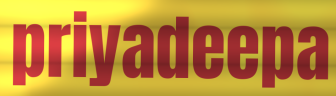
priyadeepa